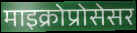
माइक्रोप्रोसेसर